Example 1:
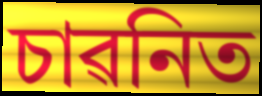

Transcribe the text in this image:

চাৱনিত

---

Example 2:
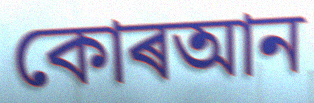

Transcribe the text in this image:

কোৰআন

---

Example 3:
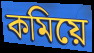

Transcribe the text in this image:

কমিয়ে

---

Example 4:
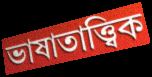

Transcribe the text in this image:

ভাষাতাত্ত্বিক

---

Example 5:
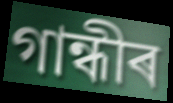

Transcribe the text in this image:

গান্ধীৰ